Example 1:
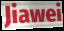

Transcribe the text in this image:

Jiawei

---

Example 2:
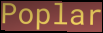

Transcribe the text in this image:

Poplar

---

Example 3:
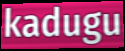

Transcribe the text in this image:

kadugu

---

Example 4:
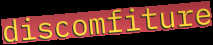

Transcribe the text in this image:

discomfiture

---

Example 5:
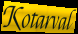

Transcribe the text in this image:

Kotarval